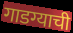
गाडग्याची